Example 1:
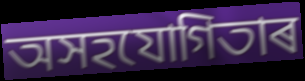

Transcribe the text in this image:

অসহযোগিতাৰ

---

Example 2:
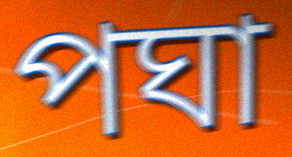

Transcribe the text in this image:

পঘা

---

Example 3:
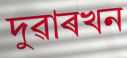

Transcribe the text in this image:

দুৱাৰখন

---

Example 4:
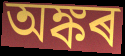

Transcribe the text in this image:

অঙ্কৰ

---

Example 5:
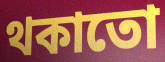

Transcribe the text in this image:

থকাতো